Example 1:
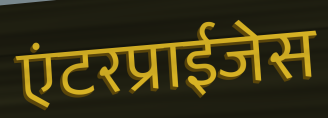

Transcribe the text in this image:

एंटरप्राईजेस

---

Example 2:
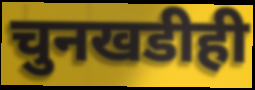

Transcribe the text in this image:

चुनखडीही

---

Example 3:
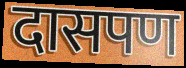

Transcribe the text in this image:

दासपण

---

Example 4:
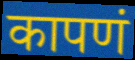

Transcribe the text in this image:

कापणं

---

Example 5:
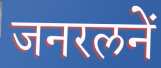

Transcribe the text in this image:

जनरलनें